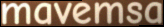
mavemsa